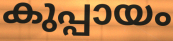
കുപ്പായം